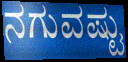
ನಗುವಷ್ಟು